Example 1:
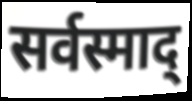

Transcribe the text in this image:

सर्वस्माद्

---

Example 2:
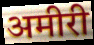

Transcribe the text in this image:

अमीरी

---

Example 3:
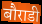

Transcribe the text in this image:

बौराडी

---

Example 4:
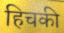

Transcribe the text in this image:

हिचकी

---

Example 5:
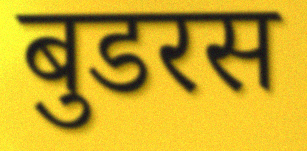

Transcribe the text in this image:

बुडरस